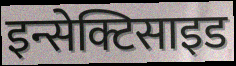
इन्सेक्टिसाइड